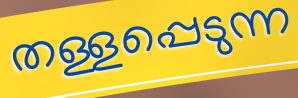
തള്ളപ്പെടുന്ന